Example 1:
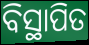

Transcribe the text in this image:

ବିସ୍ଥାପିତ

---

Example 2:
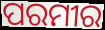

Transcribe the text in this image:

ପରମୀର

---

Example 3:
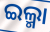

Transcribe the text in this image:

ଇଲ୍ମା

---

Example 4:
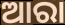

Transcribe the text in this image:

ଆରା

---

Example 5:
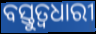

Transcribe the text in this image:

ବସ୍ତୁତ୍ୱଧାରୀ